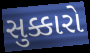
સુક્કારો